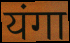
यंगा